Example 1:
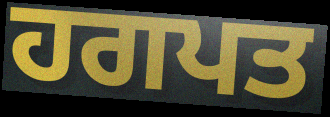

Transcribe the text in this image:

ਹਗਪਤ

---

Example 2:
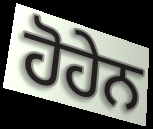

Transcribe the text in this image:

ਹੋਹੇਨ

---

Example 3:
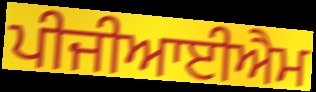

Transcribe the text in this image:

ਪੀਜੀਆਈਐਮ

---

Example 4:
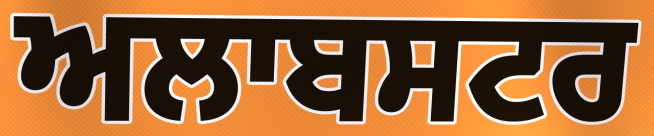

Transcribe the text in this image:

ਅਲਾਬਸਟਰ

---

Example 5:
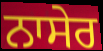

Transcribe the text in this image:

ਨਾਸੇਰ